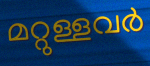
മറ്റുള്ളവർ